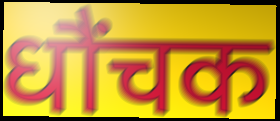
धौंचक